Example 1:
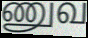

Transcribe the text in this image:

ணுவ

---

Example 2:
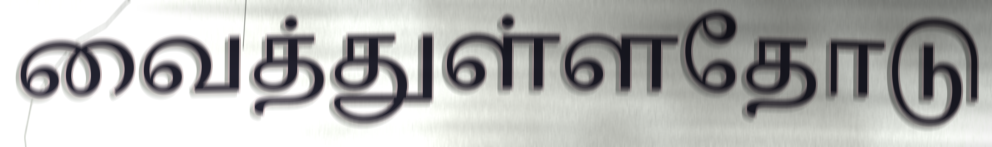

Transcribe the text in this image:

வைத்துள்ளதோடு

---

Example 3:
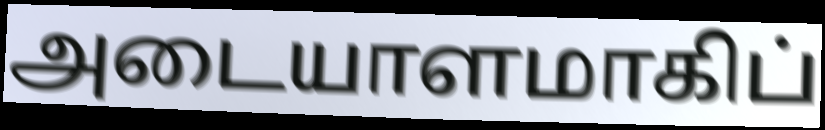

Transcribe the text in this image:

அடையாளமாகிப்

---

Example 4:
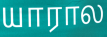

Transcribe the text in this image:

யாரால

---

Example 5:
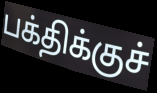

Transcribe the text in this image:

பக்திக்குச்